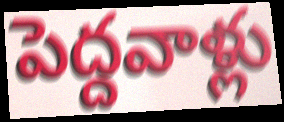
పెద్దవాళ్లు